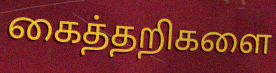
கைத்தறிகளை